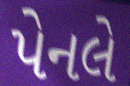
પેનલે